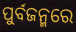
ପୁର୍ବଜନ୍ମରେ